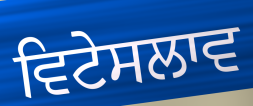
ਵਿਟੇਸਲਾਵ